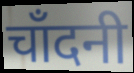
चाँदनी